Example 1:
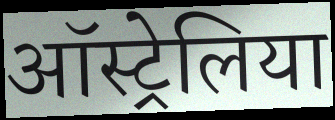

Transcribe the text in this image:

ऑस्ट्रेलिया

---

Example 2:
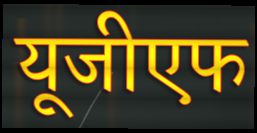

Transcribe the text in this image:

यूजीएफ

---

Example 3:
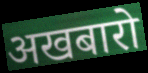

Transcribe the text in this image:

अखबारो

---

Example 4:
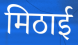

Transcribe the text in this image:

मिठाई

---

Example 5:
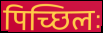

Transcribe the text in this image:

पिच्छिलः